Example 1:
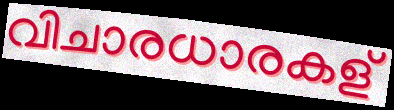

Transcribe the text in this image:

വിചാരധാരകള്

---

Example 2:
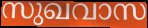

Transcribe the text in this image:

സുഖവാസ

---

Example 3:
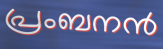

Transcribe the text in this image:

പ്രംബനൻ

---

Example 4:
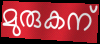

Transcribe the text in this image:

മുരുകന്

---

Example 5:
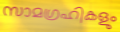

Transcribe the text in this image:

സാമഗ്രഹികളും